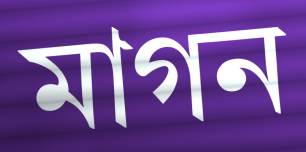
মাগন